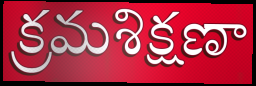
క్రమశిక్షణా